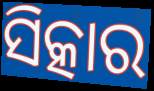
ସିତ୍କାର